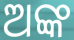
ଅଙ୍କ